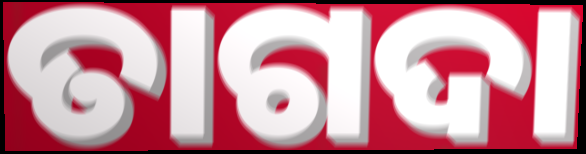
ତାଗଦା